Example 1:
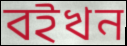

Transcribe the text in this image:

বইখন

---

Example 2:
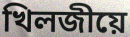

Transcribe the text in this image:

খিলজীয়ে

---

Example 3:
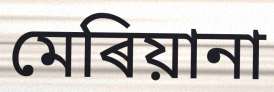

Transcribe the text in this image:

মেৰিয়ানা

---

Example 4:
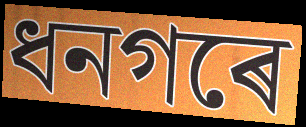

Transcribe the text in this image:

ধনগৰে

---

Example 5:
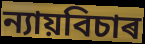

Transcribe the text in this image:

ন্যায়বিচাৰ